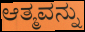
ಆತ್ಮವನ್ನು